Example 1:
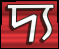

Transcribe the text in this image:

দ্য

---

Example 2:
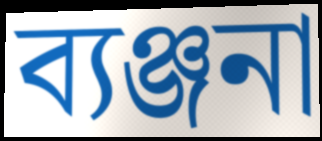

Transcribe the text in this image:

ব্যঞ্জনা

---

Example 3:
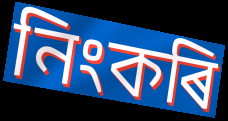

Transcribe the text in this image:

নিংকৰি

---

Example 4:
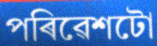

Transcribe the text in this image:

পৰিৱেশটো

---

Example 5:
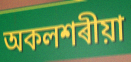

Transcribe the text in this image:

অকলশৰীয়া